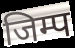
जिम्प